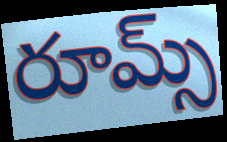
రూమ్స్